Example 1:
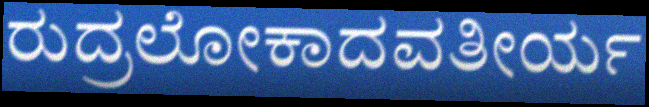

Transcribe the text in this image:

ರುದ್ರಲೋಕಾದವತೀರ್ಯ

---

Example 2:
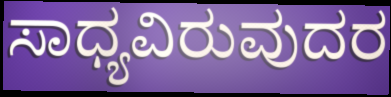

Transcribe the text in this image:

ಸಾಧ್ಯವಿರುವುದರ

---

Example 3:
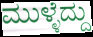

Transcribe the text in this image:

ಮುಳ್ಳೆದ್ದು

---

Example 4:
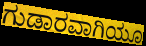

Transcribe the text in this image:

ಗುಡಾರವಾಗಿಯೂ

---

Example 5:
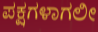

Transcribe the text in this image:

ಪಕ್ಷಗಳಾಗಲೀ